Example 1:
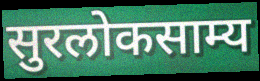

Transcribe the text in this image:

सुरलोकसाम्य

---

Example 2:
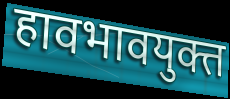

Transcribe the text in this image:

हावभावयुक्त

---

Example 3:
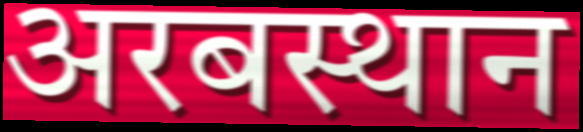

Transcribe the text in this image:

अरबस्थान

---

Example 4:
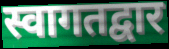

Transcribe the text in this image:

स्वागतद्वार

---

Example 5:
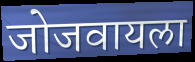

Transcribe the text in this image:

जोजवायला